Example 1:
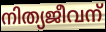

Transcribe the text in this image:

നിത്യജീവന്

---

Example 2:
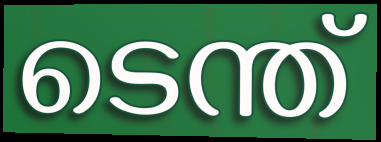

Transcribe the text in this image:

ടെന്ത്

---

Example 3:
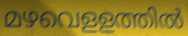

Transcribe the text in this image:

മഴവെളളത്തിൽ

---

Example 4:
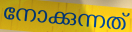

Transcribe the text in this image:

നോക്കുന്നത്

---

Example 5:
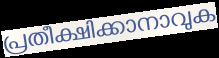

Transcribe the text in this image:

പ്രതീക്ഷിക്കാനാവുക